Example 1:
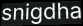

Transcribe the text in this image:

snigdha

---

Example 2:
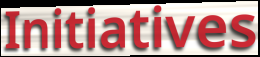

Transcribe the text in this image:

Initiatives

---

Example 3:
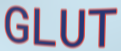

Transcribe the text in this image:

GLUT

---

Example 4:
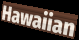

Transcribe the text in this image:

Hawaiian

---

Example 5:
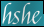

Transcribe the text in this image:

hshe